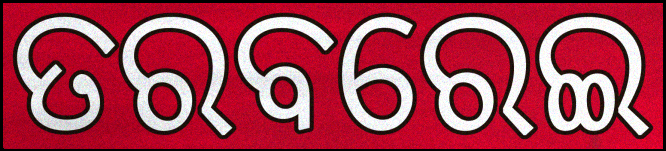
ତରବରେଇ